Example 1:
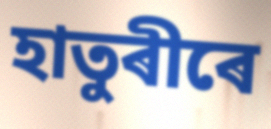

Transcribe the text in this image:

হাতুৰীৰে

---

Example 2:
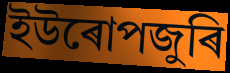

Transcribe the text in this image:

ইউৰোপজুৰি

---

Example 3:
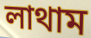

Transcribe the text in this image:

লাথাম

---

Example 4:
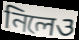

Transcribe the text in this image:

নিলেও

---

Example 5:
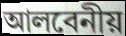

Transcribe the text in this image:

আলবেনীয়